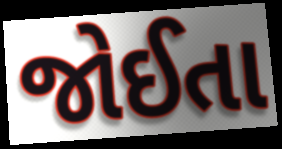
જોઈતા